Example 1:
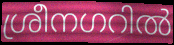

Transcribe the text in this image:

ശ്രീനഗറിൽ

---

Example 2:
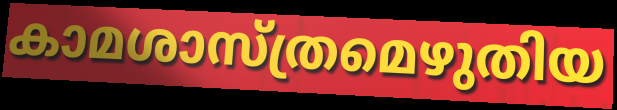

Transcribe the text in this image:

കാമശാസ്ത്രമെഴുതിയ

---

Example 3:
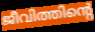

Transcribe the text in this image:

ജീവിത്തിന്റെ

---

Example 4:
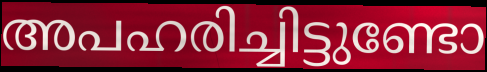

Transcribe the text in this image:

അപഹരിച്ചിട്ടുണ്ടോ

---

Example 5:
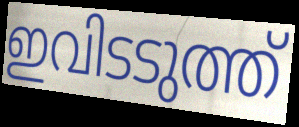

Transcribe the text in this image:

ഇവിടടുത്ത്